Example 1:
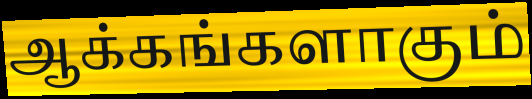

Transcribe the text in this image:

ஆக்கங்களாகும்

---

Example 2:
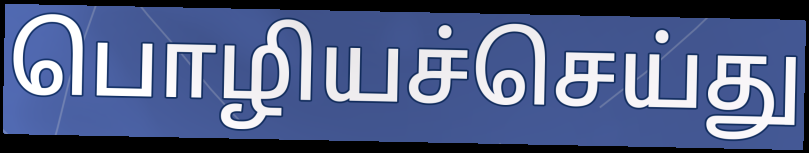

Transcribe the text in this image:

பொழியச்செய்து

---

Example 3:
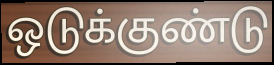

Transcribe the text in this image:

ஒடுக்குண்டு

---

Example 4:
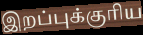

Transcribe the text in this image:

இறப்புக்குரிய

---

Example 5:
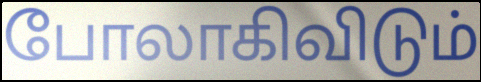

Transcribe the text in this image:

போலாகிவிடும்